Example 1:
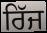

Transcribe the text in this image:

ਰਿੱਜ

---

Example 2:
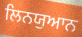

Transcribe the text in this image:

ਲਿਨਯੁਆਨ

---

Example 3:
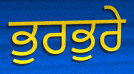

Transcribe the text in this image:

ਭੁਰਭੁਰੇ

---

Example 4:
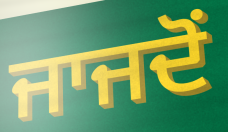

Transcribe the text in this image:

ਜਾਜਦੋਂ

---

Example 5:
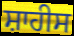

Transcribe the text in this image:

ਸ਼ਾਹੀਸ